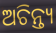
ଅଚିନ୍ତ୍ଯ